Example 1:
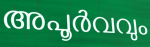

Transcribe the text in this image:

അപൂർവവും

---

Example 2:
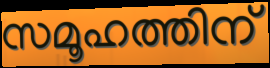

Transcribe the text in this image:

സമൂഹത്തിന്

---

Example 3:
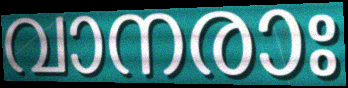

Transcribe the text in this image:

വാനരാഃ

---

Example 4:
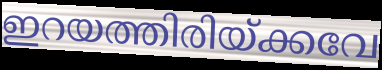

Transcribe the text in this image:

ഇറയത്തിരിയ്ക്കവേ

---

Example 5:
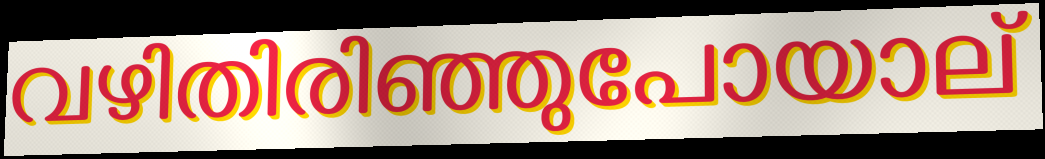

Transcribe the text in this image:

വഴിതിരിഞ്ഞുപോയാല്